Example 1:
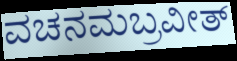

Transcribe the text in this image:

ವಚನಮಬ್ರವೀತ್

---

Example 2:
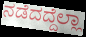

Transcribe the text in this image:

ನಡೆದದ್ದೆಲ್ಲಾ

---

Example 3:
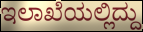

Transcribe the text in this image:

ಇಲಾಖೆಯಲ್ಲಿದ್ದು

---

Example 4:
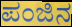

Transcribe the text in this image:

ಪಂಜಿನ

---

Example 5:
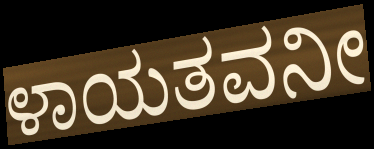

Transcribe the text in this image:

ಳಾಯತವನೀ